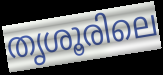
തൃശൂരിലെ